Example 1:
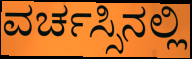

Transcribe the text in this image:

ವರ್ಚಸ್ಸಿನಲ್ಲಿ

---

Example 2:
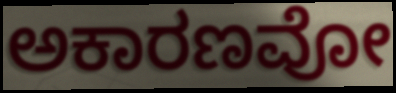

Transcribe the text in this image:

ಅಕಾರಣವೋ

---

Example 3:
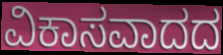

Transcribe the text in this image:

ವಿಕಾಸವಾದದ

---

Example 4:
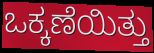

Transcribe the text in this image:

ಒಕ್ಕಣೆಯಿತ್ತು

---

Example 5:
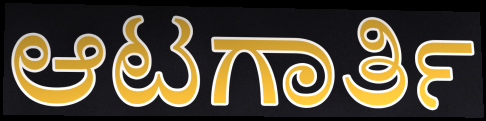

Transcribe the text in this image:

ಆಟಗಾರ್ತಿ